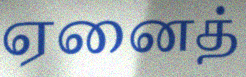
ஏனைத்